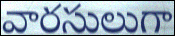
వారసులుగా